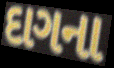
દાગના